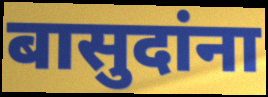
बासुदांना